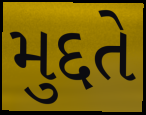
મુદ્દતે